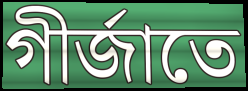
গীর্জাতে